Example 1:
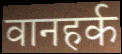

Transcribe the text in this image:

वानहर्क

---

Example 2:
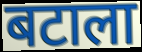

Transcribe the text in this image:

बटाला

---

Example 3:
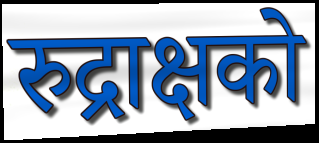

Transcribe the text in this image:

रुद्राक्षको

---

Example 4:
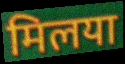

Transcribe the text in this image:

मिलया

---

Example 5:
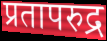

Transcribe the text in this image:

प्रतापरुद्र